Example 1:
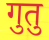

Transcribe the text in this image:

गुतु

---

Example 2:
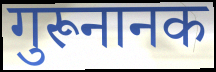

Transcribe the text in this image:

गुरूनानक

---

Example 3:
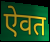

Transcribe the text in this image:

ऐवत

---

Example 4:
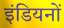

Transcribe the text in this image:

इंडियनों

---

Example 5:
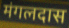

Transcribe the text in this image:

मंगलदास